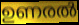
ഉണരൽ